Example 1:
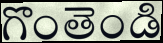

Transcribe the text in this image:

గొంతెండి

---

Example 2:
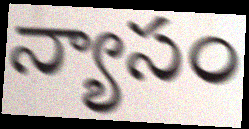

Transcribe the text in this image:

న్యాసం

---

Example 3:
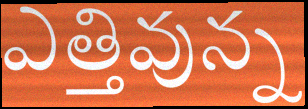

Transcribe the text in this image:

ఎత్తివున్న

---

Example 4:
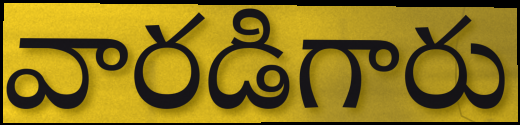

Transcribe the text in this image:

వారడిగారు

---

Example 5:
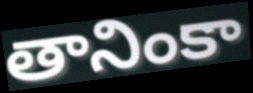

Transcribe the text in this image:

తానింకా